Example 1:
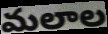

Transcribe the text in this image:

మలాల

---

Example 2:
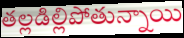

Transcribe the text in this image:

తల్లడిల్లిపోతున్నాయి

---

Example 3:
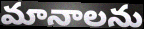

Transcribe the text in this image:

మానాలను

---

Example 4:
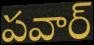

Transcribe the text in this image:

పవార్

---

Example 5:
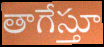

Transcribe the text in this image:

తాగేస్తూ